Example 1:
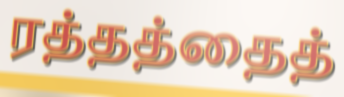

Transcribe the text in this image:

ரத்தத்தைத்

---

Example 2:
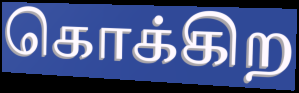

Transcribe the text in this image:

கொக்கிற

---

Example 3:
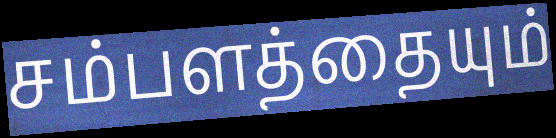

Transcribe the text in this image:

சம்பளத்தையும்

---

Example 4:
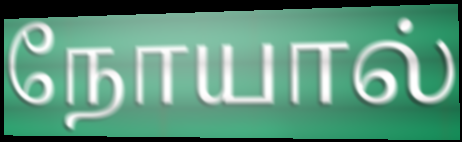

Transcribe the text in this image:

நோயால்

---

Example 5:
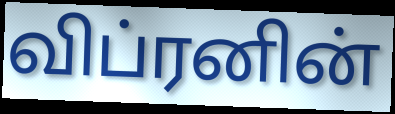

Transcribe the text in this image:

விப்ரனின்